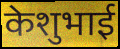
केशुभाई